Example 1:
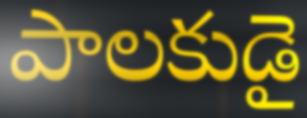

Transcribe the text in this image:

పాలకుడై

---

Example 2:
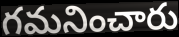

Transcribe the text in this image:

గమనించారు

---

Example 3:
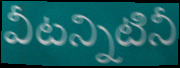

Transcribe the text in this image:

వీటన్నిటినీ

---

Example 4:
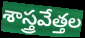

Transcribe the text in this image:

శాస్త్రవేత్తల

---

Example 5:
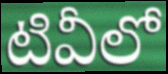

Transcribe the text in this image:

టివీలో